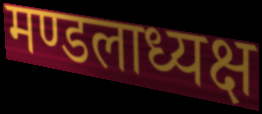
मण्डलाध्यक्ष